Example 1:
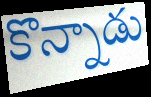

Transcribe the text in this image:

కొన్నాడు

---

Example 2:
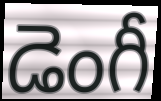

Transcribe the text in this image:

డెంగీ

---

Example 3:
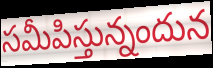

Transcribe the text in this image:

సమీపిస్తున్నందున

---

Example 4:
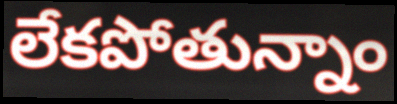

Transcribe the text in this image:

లేకపోతున్నాం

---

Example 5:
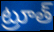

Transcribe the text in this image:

ట్రూత్